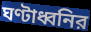
ঘণ্টাধ্বনির